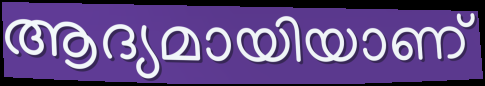
ആദ്യമായിയാണ്